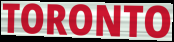
TORONTO